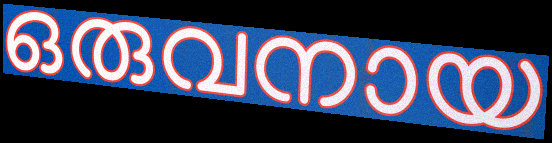
ഒരുവനായ